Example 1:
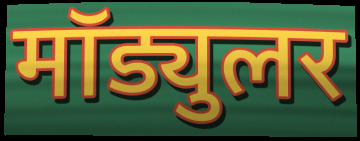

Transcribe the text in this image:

मॉड्युलर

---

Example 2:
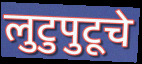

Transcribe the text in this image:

लुटुपुटूचे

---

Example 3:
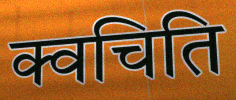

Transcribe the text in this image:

क्वचिति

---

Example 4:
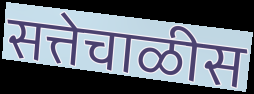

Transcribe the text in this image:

सत्तेचाळीस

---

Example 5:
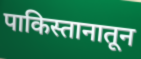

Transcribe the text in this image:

पाकिस्तानातून